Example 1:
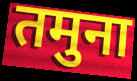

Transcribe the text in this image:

तमुना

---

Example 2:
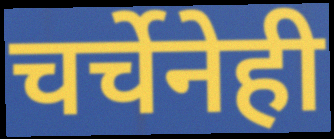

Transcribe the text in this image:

चर्चेनेही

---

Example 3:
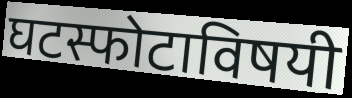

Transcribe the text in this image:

घटस्फोटाविषयी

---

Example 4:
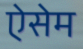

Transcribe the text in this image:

ऐसेम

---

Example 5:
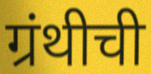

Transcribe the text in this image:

ग्रंथीची